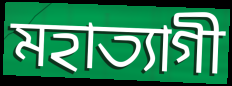
মহাত্যাগী